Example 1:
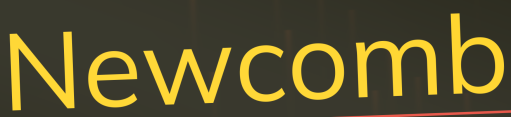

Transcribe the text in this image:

Newcomb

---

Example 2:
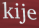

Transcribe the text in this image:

kije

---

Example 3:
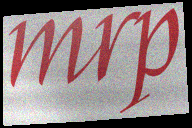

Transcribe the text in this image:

mrp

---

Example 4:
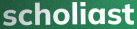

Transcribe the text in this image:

scholiast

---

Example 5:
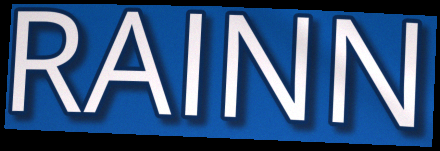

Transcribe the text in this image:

RAINN